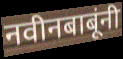
नवीनबाबूंनी